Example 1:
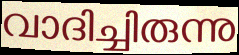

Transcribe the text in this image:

വാദിച്ചിരുന്നു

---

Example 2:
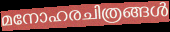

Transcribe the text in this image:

മനോഹരചിത്രങ്ങൾ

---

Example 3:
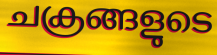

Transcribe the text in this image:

ചക്രങ്ങളുടെ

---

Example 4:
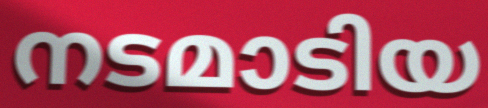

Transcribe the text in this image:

നടമാടിയ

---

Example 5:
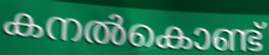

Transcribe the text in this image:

കനൽകൊണ്ട്